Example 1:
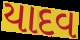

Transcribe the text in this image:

યાદવ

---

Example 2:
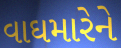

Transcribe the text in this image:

વાઘમારેને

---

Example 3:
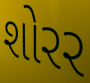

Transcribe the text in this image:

શોરર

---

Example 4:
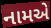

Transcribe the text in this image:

નામએ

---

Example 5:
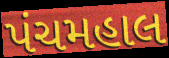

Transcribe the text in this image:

પંચમહાલ